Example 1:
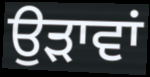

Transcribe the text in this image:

ਉੜਾਵਾਂ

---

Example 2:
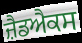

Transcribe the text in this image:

ਜ਼ੈਡਐਕਸ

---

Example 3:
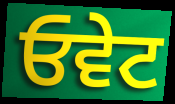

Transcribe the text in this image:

ਓਵੇਟ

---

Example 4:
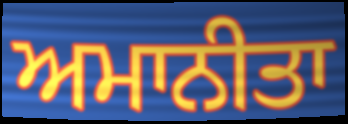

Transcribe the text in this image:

ਅਮਾਨੀਤਾ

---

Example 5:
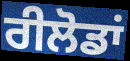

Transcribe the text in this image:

ਰੀਲੋਡਾਂ